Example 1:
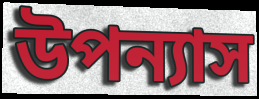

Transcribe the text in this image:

উপন্যাস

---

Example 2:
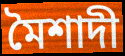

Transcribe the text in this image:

মৈশাদী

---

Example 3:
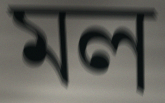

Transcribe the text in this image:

মল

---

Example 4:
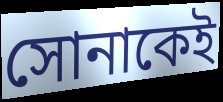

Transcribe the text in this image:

সোনাকেই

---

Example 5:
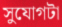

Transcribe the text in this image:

সুযোগটা